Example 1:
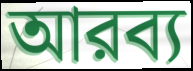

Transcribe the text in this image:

আরব্য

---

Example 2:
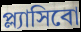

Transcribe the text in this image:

প্ল্যাসিবো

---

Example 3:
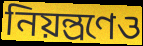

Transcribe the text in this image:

নিয়ন্ত্রণেও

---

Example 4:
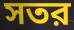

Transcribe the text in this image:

সতর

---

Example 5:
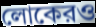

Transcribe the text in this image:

লোকেরও